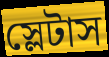
স্লেটাস